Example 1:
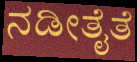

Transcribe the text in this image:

ನಡೀತೈತೆ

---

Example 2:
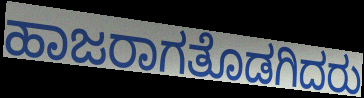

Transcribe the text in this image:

ಹಾಜರಾಗತೊಡಗಿದರು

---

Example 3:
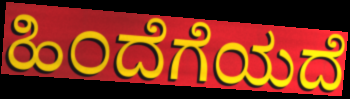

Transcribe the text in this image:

ಹಿಂದೆಗೆಯದೆ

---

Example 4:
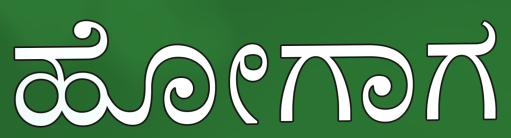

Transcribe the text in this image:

ಹೋಗಾಗ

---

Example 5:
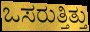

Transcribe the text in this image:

ಒಸರುತ್ತಿತ್ತು